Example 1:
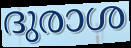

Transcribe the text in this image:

ദുരാശ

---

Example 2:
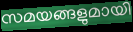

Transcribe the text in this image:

സമയങ്ങളുമായി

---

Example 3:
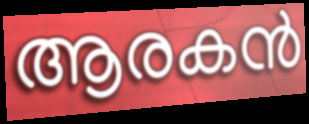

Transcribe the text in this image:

ആരകൻ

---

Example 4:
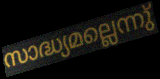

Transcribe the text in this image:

സാദ്ധ്യമല്ലെന്നു്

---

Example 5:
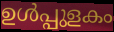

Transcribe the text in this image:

ഉൾപ്പുളകം